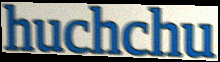
huchchu